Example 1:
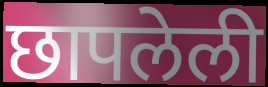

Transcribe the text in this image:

छापलेली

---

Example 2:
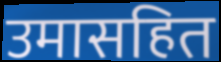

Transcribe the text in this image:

उमासहित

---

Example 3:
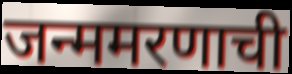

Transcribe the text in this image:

जन्ममरणाची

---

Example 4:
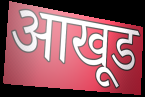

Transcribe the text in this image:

आखूड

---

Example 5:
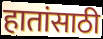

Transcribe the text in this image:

हातांसाठी